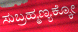
ಸುಬ್ರಹ್ಮಣ್ಯಕ್ಕೋ